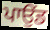
ਪਾਉਂਡ